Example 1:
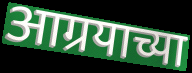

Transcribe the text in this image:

आग्रयाच्या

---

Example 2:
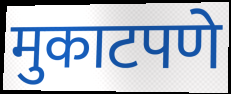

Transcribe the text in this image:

मुकाटपणे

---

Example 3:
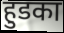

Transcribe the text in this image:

हुडका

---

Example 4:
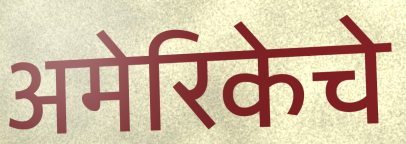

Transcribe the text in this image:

अमेरिकेचे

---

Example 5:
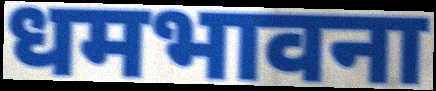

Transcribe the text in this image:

धमभावना